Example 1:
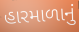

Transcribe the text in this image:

હારમાળાનું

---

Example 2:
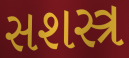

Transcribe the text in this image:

સશસ્ત્ર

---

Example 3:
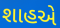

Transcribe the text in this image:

શાહએ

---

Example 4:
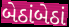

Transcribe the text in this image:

બેઠાંબેઠાં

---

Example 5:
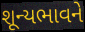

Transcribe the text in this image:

શૂન્યભાવને